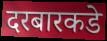
दरबारकडे